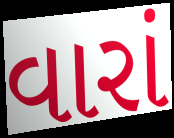
વારાં